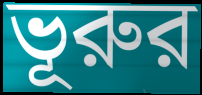
ভূরুর